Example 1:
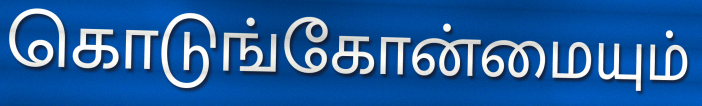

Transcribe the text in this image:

கொடுங்கோன்மையும்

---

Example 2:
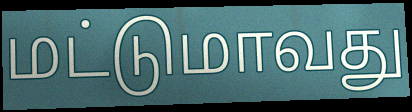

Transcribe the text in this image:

மட்டுமாவது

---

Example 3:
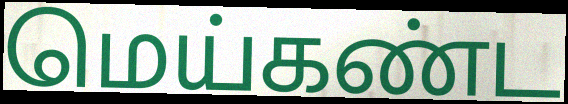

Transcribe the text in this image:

மெய்கண்ட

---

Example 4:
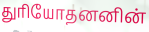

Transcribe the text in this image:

துரியோதனனின்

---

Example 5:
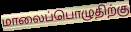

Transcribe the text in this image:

மாலைப்பொழுதிற்கு